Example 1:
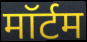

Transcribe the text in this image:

मॉर्टम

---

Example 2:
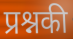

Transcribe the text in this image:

प्रश्नकी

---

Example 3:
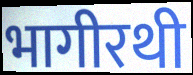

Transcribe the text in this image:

भागीरथी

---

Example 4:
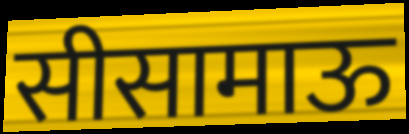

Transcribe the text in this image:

सीसामाऊ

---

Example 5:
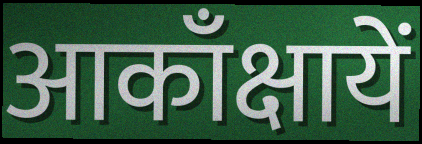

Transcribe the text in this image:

आकाँक्षायें